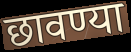
छावण्या